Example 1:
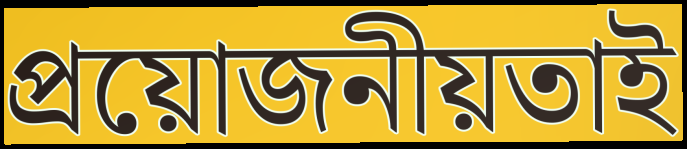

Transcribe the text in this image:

প্রয়োজনীয়তাই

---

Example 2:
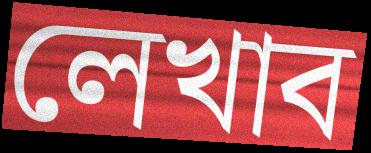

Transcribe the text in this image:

লেখাব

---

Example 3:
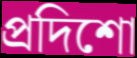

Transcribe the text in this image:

প্রদিশো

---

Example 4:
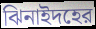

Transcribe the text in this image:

ঝিনাইদহের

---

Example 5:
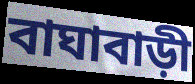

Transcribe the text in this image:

বাঘাবাড়ী